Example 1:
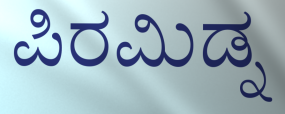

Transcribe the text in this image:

ಪಿರಮಿಡ್ನ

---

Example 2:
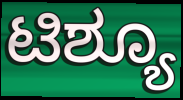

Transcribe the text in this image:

ಟಿಶ್ಯೂ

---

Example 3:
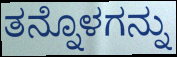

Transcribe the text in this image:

ತನ್ನೊಳಗನ್ನು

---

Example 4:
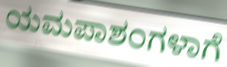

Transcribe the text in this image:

ಯಮಪಾಶಂಗಳಾಗೆ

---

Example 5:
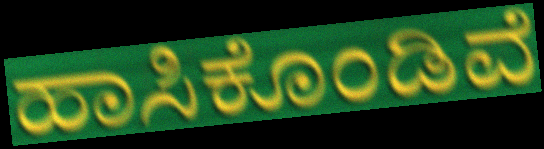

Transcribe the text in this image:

ಹಾಸಿಕೊಂಡಿವೆ